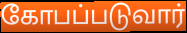
கோபப்படுவார்